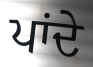
ਪਾਂਦੇ